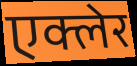
एक्लेर